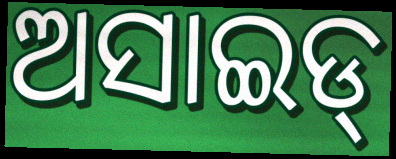
ଅସାଇଡ୍